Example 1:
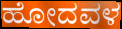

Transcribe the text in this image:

ಹೋದವಳ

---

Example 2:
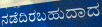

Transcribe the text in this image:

ನಡೆದಿರಬಹುದಾದ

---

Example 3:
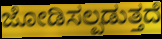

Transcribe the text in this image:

ಜೋಡಿಸಲ್ಪಡುತ್ತದೆ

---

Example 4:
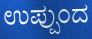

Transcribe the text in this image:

ಉಪ್ಪುಂದ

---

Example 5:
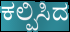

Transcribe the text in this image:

ಕಲ್ಪಿಸಿದ